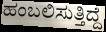
ಹಂಬಲಿಸುತ್ತಿದ್ದೆ